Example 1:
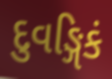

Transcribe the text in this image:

દુવઙ્ગિકં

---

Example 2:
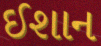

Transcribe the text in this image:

ઈશાન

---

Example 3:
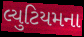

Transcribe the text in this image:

લ્યુટિયમના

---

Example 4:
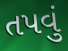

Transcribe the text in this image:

તપવું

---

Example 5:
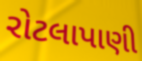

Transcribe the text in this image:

રોટલાપાણી